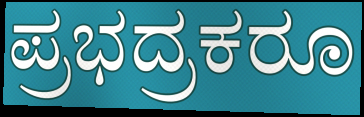
ಪ್ರಭದ್ರಕರೂ